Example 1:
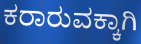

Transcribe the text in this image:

ಕರಾರುವಕ್ಕಾಗಿ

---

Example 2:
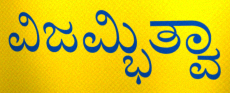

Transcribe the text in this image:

ವಿಜಮ್ಭಿತ್ವಾ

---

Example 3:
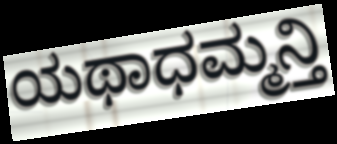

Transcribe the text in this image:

ಯಥಾಧಮ್ಮನ್ತಿ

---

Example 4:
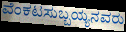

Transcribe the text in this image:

ವೆಂಕಟಸುಬ್ಬಯ್ಯನವರು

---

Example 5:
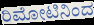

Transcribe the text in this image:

ರಿಮೋಟಿನಿಂದ